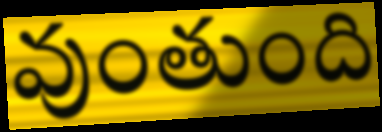
వుంతుంది